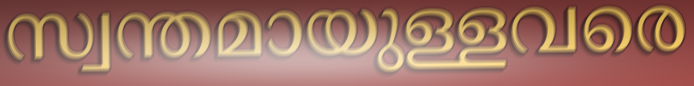
സ്വന്തമായുള്ളവരെ